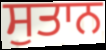
ਸੁਤਾਨ